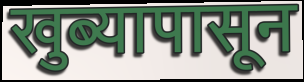
खुब्यापासून